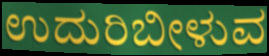
ಉದುರಿಬೀಳುವ